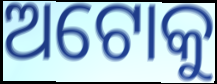
ଅଟୋକୁ